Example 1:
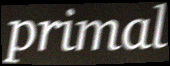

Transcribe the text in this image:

primal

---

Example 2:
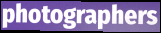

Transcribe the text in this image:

photographers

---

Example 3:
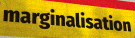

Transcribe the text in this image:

marginalisation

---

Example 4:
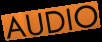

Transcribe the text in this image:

AUDIO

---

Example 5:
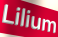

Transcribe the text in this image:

Lilium